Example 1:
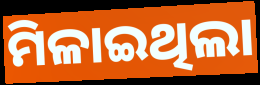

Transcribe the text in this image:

ମିଳାଇଥିଲା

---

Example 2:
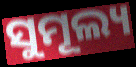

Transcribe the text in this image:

ସୁମୂଲ୍ୟ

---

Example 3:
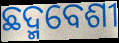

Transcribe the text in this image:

ଛଦ୍ମବେଶୀ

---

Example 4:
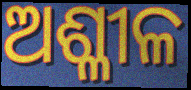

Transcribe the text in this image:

ଅଶ୍ଳୀଳ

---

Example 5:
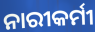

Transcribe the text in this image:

ନାରୀକର୍ମୀ